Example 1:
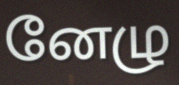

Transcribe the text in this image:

னேழு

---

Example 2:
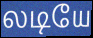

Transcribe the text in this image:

லடியே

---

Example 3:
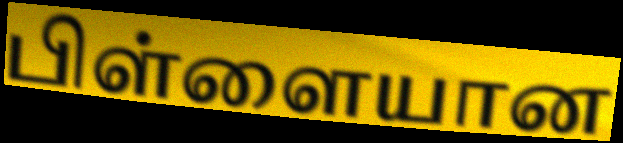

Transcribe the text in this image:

பிள்ளையான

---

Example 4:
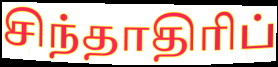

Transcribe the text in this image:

சிந்தாதிரிப்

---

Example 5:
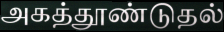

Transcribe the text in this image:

அகத்தூண்டுதல்